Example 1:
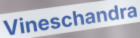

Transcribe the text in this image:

Vineschandra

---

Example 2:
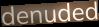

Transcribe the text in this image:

denuded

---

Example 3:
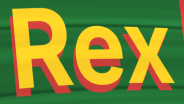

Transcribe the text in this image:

Rex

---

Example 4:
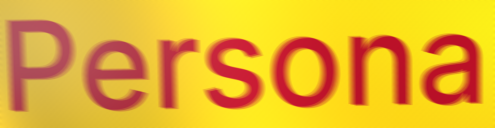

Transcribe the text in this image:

Persona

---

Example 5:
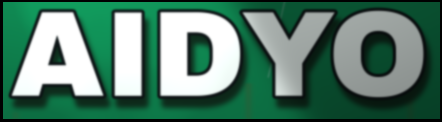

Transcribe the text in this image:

AIDYO